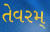
તેવરમ્